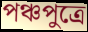
পঞ্চপুত্রে